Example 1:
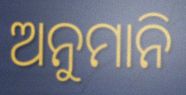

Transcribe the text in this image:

ଅନୁମାନି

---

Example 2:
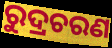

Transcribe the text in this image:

ରୁଦ୍ରଚରଣ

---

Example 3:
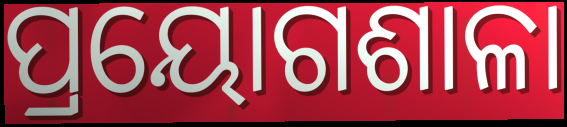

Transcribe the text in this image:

ପ୍ରୟୋଗଶାଳା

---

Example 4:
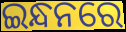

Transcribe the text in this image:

ଇନ୍ଧନରେ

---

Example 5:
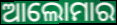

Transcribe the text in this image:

ଆଲୋମାର